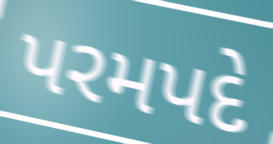
પરમપદે